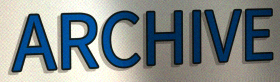
ARCHIVE